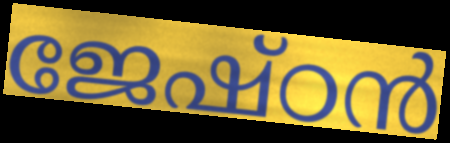
ജേഷ്ഠൻ